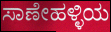
ಸಾಣೇಹಳ್ಳಿಯ